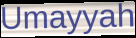
Umayyah